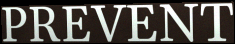
PREVENT